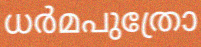
ധർമപുത്രോ